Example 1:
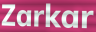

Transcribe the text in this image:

Zarkar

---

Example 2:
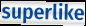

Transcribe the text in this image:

superlike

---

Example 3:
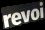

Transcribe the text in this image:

revoi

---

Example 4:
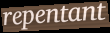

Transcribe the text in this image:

repentant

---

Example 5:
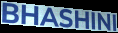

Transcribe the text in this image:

BHASHINI